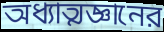
অধ্যাত্মজ্ঞানের